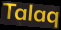
Talaq